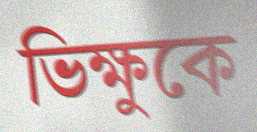
ভিক্ষুকে